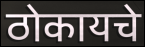
ठोकायचे